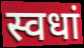
स्वधां